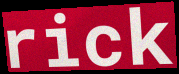
rick